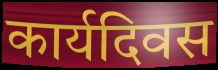
कार्यदिवस